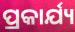
ପ୍ରକାର୍ଯ୍ୟ